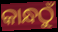
କାନ୍ଧଠୁଁ